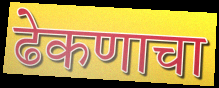
ढेकणाचा